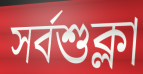
সর্বশুক্লা